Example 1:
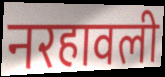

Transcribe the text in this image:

नरहावली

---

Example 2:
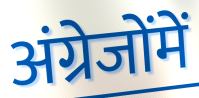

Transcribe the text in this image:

अंग्रेजोंमें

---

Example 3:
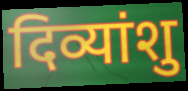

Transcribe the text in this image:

दिव्यांशु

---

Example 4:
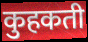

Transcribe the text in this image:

कुहकती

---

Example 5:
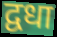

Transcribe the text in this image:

द्वधा